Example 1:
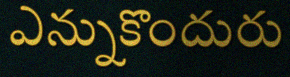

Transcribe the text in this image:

ఎన్నుకొందురు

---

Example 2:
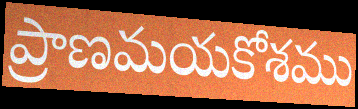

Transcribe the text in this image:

ప్రాణమయకోశము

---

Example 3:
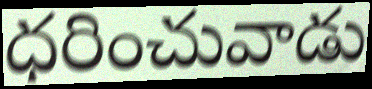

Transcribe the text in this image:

ధరించువాడు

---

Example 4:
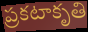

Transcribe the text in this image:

ప్రకటాకృతి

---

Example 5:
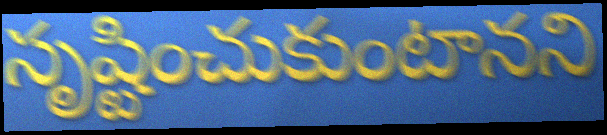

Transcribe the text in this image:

సృష్టించుకుంటానని